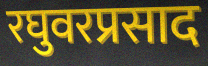
रघुवरप्रसाद